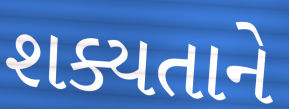
શક્યતાને